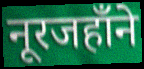
नूरजहाँने